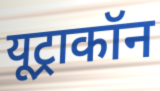
यूट्राकॉन